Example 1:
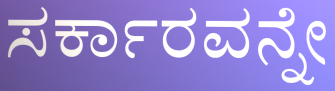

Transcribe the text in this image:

ಸರ್ಕಾರವನ್ನೇ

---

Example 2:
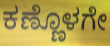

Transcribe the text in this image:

ಕಣ್ಣೊಳಗೇ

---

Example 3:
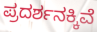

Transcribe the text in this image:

ಪ್ರದರ್ಶನಕ್ಕಿವೆ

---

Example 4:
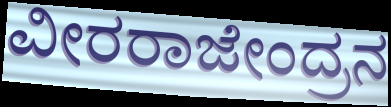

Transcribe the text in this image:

ವೀರರಾಜೇಂದ್ರನ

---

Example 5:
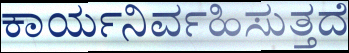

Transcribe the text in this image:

ಕಾರ್ಯನಿರ್ವಹಿಸುತ್ತದೆ